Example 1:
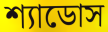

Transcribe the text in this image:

শ্যাডোস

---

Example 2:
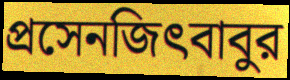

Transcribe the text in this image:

প্রসেনজিৎবাবুর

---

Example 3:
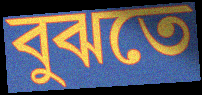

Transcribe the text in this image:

বুঝতে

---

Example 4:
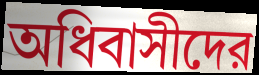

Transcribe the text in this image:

অধিবাসীদের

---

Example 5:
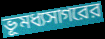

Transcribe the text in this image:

ভূমধ্যসাগরের